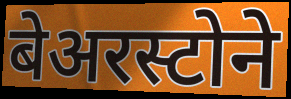
बेअरस्टोने